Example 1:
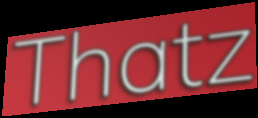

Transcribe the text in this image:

Thatz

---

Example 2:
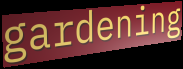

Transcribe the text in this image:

gardening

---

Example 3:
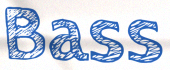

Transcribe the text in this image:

Bass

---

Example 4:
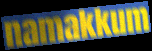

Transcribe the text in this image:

namakkum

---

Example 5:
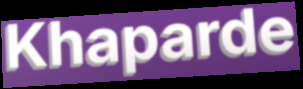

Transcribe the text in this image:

Khaparde